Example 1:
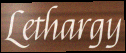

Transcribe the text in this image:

Lethargy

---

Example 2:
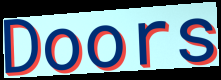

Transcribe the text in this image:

Doors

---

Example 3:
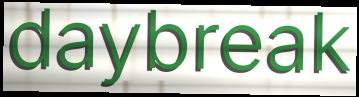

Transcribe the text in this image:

daybreak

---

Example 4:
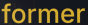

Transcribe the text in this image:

former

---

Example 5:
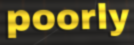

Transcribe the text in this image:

poorly